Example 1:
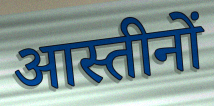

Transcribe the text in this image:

आस्तीनों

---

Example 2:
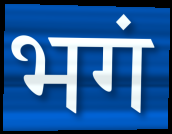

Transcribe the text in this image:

भगं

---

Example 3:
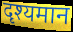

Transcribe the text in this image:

दृश्यमान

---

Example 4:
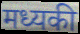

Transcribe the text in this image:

मध्यकी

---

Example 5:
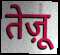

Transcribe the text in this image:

तेज़ू